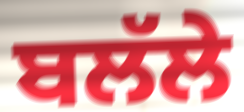
ਬਲੱਲੇ